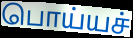
பொய்யச்